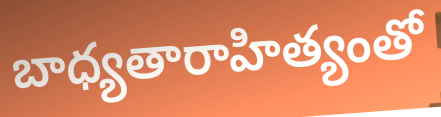
బాధ్యతారాహిత్యంతో